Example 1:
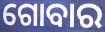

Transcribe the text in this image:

ଗୋବାର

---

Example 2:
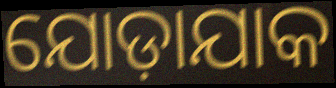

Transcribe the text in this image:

ଯୋଡ଼ାଯାକ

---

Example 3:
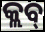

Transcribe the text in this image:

କ୍ଲବ୍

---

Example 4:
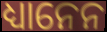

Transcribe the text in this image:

ଧ୍ୟାନେନ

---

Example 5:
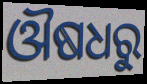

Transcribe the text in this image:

ଔଷଧରୁ